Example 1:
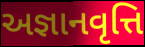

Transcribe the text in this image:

અજ્ઞાનવૃત્તિ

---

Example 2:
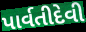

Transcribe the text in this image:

પાર્વતીદેવી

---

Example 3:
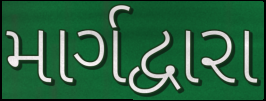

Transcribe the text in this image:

માર્ગદ્વારા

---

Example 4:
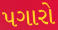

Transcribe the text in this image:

પગારો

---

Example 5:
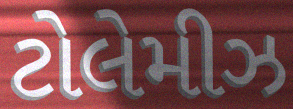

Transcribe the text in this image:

ટોલેમીઝ